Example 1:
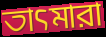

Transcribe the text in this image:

তাৎমারা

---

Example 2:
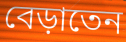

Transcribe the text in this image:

বেড়াতেন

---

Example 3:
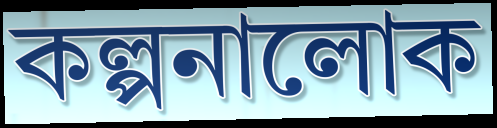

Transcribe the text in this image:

কল্পনালোক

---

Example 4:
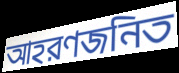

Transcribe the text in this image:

আহরণজনিত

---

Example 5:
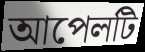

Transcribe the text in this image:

আপেলটি